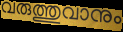
വരുത്തുവാനും